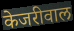
केजरीवाल